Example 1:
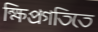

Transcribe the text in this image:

ক্ষিপ্রগতিতে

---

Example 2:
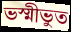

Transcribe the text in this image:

ভস্মীভুত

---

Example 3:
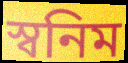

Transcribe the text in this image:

স্বনিম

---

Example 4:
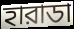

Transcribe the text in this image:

হারাডা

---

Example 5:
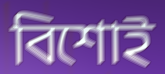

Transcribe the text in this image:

বিশোই